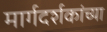
मार्गदर्शकांच्या